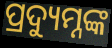
ପ୍ରଦ୍ୟୁମ୍ନଙ୍କ